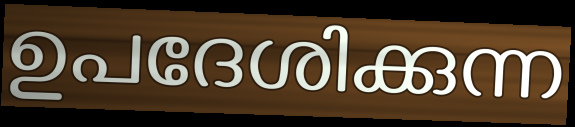
ഉപദേശിക്കുന്ന